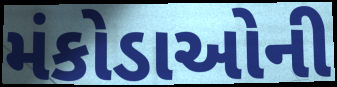
મંકોડાઓની